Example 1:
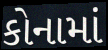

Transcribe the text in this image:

કોનામાં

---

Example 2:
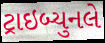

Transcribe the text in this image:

ટ્રાઇબ્યુનલે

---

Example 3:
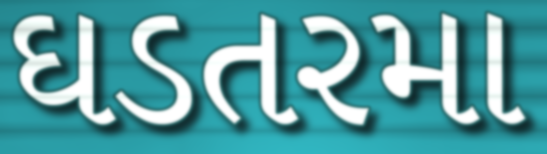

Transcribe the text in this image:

ઘડતરમા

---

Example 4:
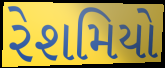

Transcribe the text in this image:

રેશમિયો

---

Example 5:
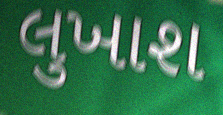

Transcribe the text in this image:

લુખાશ